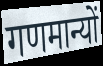
गणमान्यों